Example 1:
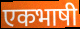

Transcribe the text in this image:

एकभाषी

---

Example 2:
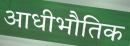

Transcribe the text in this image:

आधीभौतिक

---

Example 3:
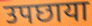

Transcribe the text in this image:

उपछाया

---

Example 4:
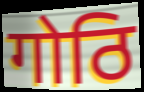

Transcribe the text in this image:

गोठि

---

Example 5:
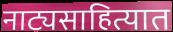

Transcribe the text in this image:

नाट्यसाहित्यात